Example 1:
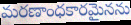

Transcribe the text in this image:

మరణాంధకారమైనను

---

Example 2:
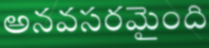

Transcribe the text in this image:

అనవసరమైంది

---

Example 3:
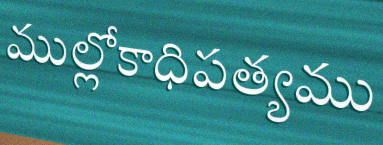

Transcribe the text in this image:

ముల్లోకాధిపత్యము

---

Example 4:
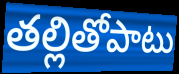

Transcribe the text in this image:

తల్లితోపాటు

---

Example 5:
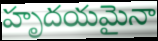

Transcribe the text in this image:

హృదయమైనా